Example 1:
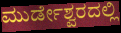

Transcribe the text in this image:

ಮುರ್ಡೇಶ್ವರದಲ್ಲಿ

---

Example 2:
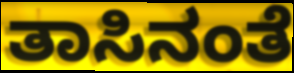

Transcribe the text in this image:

ತಾಸಿನಂತೆ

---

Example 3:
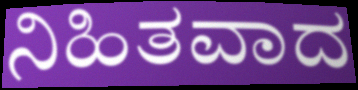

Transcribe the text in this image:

ನಿಹಿತವಾದ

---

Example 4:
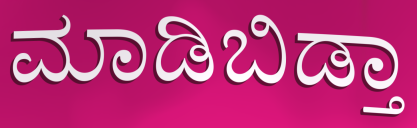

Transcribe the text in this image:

ಮಾಡಿಬಿಡ್ತಾ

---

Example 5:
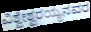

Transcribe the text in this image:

ವಿಶ್ವೇಶ್ವರಯ್ಯನವರ